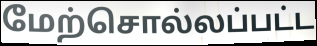
மேற்சொல்லப்பட்ட